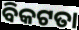
ବିକଟତା